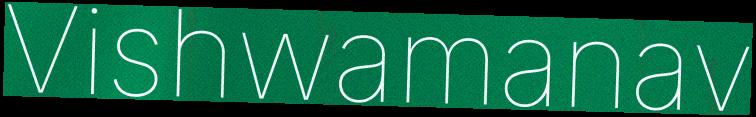
Vishwamanav